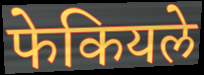
फेकियले